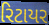
રિટાયર